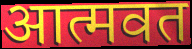
आत्मवत